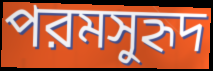
পরমসুহৃদ